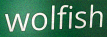
wolfish